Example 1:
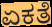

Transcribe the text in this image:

ಏಕತೆ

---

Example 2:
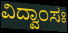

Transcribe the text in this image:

ವಿದ್ವಾಂಸಃ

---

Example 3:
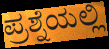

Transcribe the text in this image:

ಪ್ರಶ್ನೆಯಲ್ಲಿ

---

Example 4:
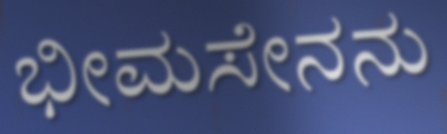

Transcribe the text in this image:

ಭೀಮಸೇನನು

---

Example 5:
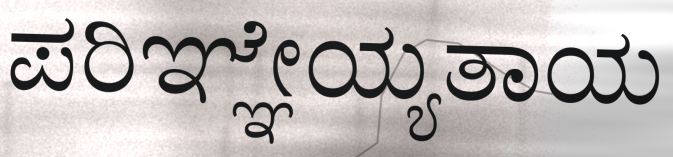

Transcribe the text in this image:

ಪರಿಞ್ಞೇಯ್ಯತಾಯ